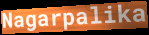
Nagarpalika